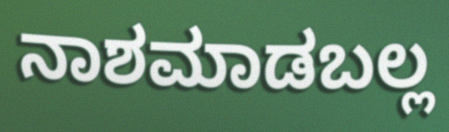
ನಾಶಮಾಡಬಲ್ಲ